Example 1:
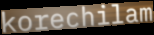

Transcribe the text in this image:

korechilam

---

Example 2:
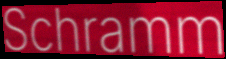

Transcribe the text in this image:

Schramm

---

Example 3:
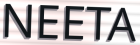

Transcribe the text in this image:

NEETA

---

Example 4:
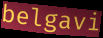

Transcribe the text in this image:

belgavi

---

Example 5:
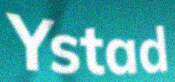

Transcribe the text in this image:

Ystad